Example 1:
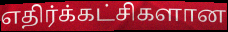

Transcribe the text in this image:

எதிர்க்கட்சிகளான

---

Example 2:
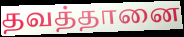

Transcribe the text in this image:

தவத்தானை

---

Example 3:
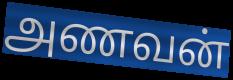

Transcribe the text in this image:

அணவன்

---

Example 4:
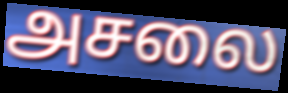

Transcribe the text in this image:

அசலை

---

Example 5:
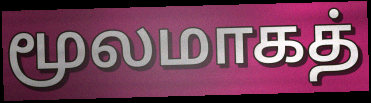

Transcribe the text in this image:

மூலமாகத்